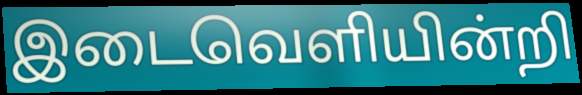
இடைவெளியின்றி